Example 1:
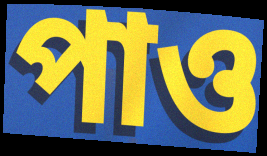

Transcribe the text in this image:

পাও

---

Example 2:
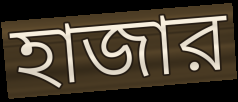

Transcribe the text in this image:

হাজার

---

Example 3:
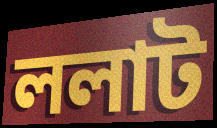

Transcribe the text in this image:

ললাট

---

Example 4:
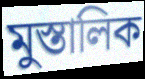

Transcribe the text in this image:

মুস্তালিক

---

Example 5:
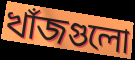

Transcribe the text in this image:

খাঁজগুলো